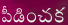
పీడించక